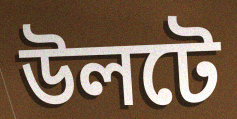
উলটে